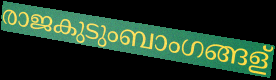
രാജകുടുംബാംഗങ്ങള്